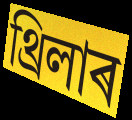
থ্ৰিলাৰ